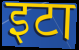
इटा